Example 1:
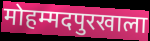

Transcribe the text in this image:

मोहम्मदपुरखाला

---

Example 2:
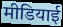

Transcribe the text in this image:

मीडियाई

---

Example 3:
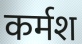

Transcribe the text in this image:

कर्मश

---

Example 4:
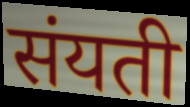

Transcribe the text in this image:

संयती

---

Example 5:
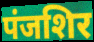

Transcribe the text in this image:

पंजशिर